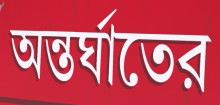
অন্তর্ঘাতের